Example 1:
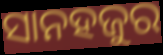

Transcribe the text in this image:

ସାନହଜୁର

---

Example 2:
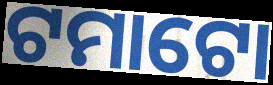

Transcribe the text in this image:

ଟମାଟୋ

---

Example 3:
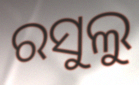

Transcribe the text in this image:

ରସୁଲୁ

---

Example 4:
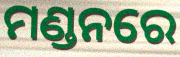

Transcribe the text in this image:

ମଣ୍ଡନରେ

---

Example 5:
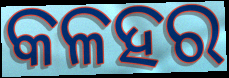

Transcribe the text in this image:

କଳହର